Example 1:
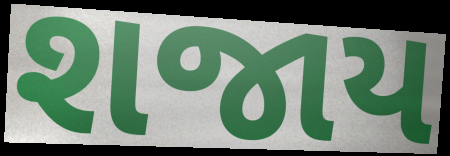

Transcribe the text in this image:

શજાય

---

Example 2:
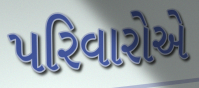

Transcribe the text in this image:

પરિવારોએ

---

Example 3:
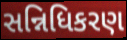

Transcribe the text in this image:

સન્નિધિકરણ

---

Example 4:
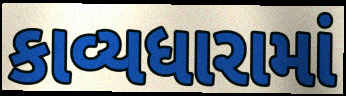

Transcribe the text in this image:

કાવ્યધારામાં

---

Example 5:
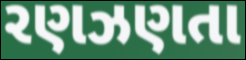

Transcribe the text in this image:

રણઝણતા